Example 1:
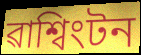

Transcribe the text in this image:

ৱাশ্বিংটন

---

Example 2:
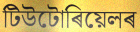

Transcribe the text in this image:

টিউটোৰিয়েলৰ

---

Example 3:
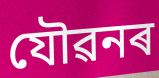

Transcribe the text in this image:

যৌৱনৰ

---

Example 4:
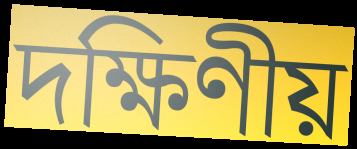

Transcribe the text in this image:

দক্ষিণীয়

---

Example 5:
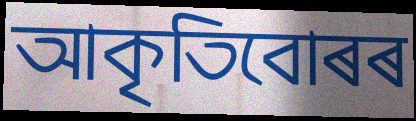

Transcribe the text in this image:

আকৃতিবোৰৰ